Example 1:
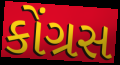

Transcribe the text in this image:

કોંગ્રસ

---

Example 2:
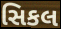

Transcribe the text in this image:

સિકલ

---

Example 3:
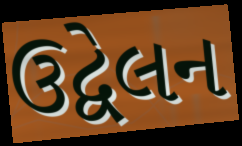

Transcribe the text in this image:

ઉદ્વેલન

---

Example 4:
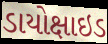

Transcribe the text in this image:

ડાયોક્ષાઇડ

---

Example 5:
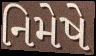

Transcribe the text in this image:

નિમેષે